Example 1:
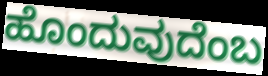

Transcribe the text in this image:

ಹೊಂದುವುದೆಂಬ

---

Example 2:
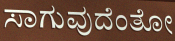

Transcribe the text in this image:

ಸಾಗುವುದೆಂತೋ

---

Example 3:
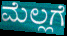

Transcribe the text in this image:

ಮೆಲ್ಲಗೆ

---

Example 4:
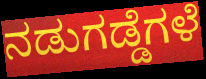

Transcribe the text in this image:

ನಡುಗಡ್ಡೆಗಳೆ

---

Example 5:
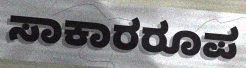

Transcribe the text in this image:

ಸಾಕಾರರೂಪ